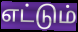
எட்டும்